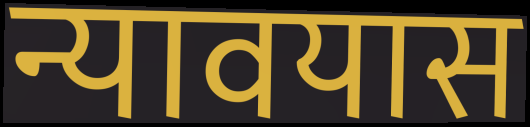
न्यावयास